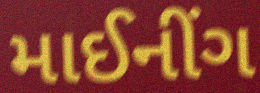
માઈનીંગ